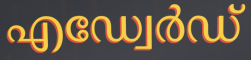
എഡ്വേർഡ്